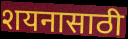
शयनासाठी